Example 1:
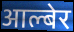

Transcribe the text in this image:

आल्बेर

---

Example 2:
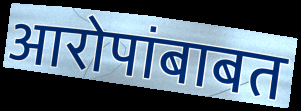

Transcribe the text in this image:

आरोपांबाबत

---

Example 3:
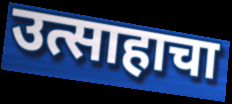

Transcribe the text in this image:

उत्साहाचा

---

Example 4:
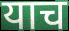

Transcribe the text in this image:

याच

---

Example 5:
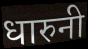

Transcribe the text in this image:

धारुनी